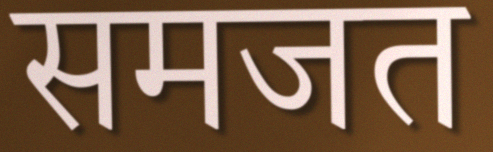
समजत